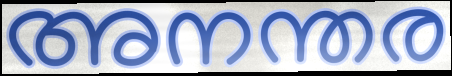
അനന്തര